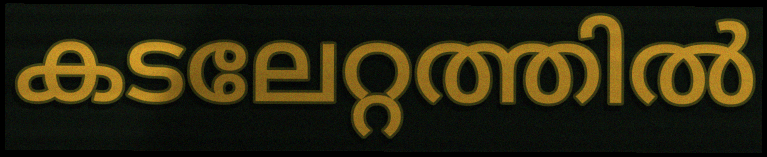
കടലേറ്റത്തിൽ